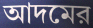
আদমের